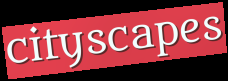
cityscapes